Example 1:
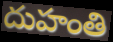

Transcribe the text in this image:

దుహంతి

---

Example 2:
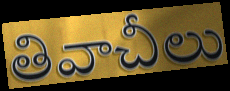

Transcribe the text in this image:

తివాచీలు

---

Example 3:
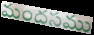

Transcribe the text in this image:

మందసము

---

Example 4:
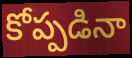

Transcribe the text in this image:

కోప్పడినా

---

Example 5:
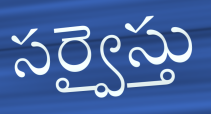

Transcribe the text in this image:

సర్వైస్తు